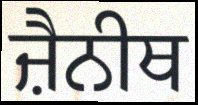
ਜ਼ੈਨੀਥ